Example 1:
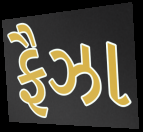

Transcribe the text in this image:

ફૈઝા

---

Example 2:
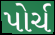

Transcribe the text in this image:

પોર્ચ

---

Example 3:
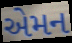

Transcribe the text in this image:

એમન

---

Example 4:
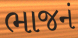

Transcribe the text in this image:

ભાજનં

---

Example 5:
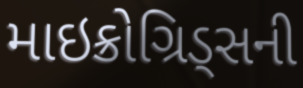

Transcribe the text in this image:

માઇક્રોગ્રિડ્સની